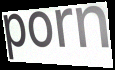
porn